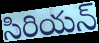
సిరియన్